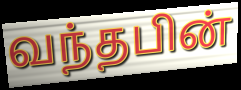
வந்தபின்